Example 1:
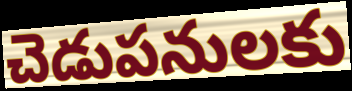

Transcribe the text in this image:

చెడుపనులకు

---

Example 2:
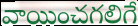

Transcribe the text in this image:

వాయించగలిగే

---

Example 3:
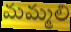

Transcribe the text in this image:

మమ్మలి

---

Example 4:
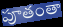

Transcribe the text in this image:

పూతంతా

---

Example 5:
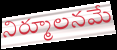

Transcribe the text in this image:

నిర్మూలనమే